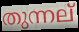
തുന്നല്